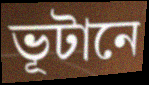
ভূটানে